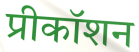
प्रीकॉशन